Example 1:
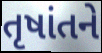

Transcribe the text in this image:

તૃષાંતને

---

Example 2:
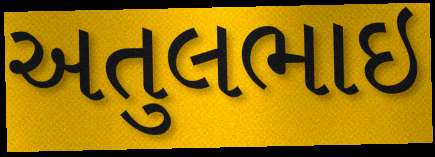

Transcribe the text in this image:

અતુલભાઇ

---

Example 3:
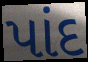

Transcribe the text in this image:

પાંદ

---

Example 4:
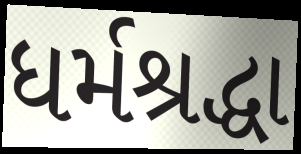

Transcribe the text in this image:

ધર્મશ્રદ્ધા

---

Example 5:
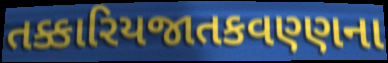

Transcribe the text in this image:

તક્કારિયજાતકવણ્ણના